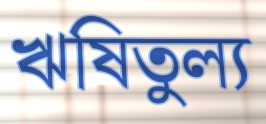
ঋষিতুল্য